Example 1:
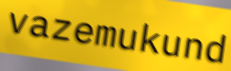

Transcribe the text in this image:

vazemukund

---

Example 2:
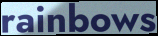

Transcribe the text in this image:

rainbows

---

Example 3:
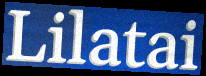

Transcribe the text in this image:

Lilatai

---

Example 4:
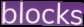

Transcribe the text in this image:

blocks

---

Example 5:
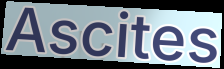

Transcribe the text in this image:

Ascites